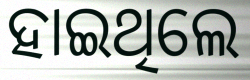
ହାଇଥିଲେ